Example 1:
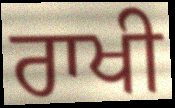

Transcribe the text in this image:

ਰਾਖੀ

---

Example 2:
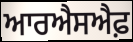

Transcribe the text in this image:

ਆਰਐਸਐਫ਼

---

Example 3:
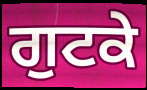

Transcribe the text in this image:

ਗੁਟਕੇ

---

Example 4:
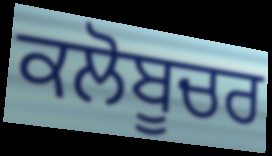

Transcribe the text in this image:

ਕਲੋਬੂਚਰ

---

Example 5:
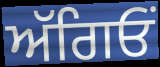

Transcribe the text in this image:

ਅੱਗਿਓਂ